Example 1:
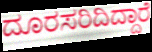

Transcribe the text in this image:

ದೂರಸರಿದಿದ್ದಾರೆ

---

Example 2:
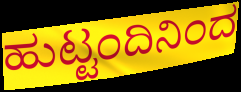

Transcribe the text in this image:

ಹುಟ್ಟಂದಿನಿಂದ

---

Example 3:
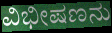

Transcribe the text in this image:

ವಿಭೀಷಣನು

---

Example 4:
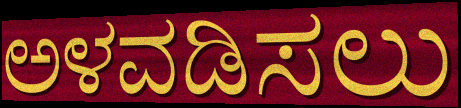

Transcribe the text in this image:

ಅಳವಡಿಸಲು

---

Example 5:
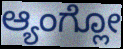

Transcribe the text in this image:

ಆ್ಯಂಗ್ಲೋ